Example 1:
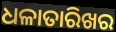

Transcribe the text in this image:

ଧଳାତାରିଖର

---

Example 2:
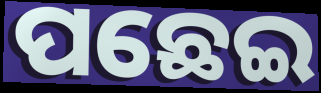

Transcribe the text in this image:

ପଛେଇ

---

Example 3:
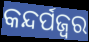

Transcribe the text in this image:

କନ୍ଦର୍ପଜ୍ବର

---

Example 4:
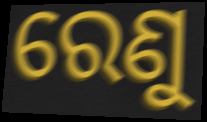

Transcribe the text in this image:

ରେଣୁ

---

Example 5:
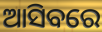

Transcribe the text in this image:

ଆସିବରେ